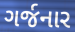
ગર્જનાર